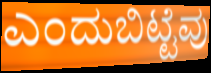
ಎಂದುಬಿಟ್ಟೆವು